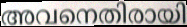
അവനെതിരായി